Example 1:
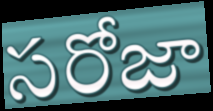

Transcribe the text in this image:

సరోజా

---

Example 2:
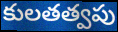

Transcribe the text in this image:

కులతత్వపు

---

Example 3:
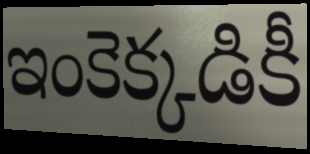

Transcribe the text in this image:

ఇంకెక్కడికీ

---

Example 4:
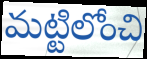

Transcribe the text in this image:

మట్టిలోంచి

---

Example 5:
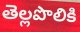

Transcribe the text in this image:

తెల్లపొలికి